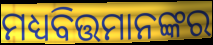
ମଧ୍ୟବିତ୍ତମାନଙ୍କର